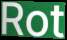
Rot